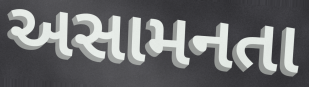
અસામનતા